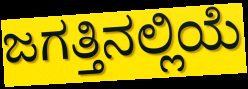
ಜಗತ್ತಿನಲ್ಲಿಯೆ